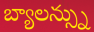
బ్యాలన్స్ను